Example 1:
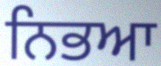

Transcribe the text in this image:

ਨਿਭਆ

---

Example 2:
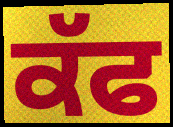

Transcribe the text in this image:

ਕੱਫ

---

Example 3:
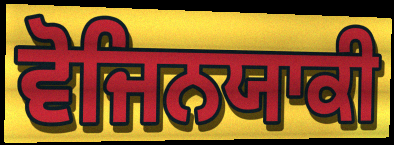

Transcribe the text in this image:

ਵੋਜਿਨਯਾਕੀ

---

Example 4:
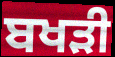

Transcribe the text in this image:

ਬਖੜੀ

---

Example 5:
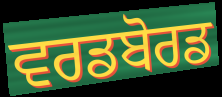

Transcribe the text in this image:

ਵਰਡਬੋਰਡ